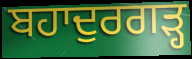
ਬਹਾਦੁਰਗੜ੍ਹ